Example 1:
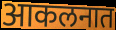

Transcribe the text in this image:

आकलनात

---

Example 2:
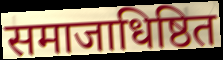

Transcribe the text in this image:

समाजाधिष्ठित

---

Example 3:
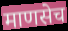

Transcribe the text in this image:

माणसेच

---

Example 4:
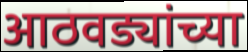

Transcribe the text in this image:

आठवड्यांच्या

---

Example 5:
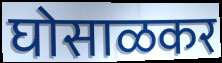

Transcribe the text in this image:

घोसाळकर